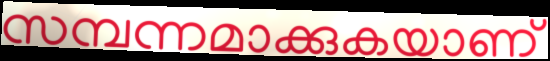
സമ്പന്നമാക്കുകയാണ്